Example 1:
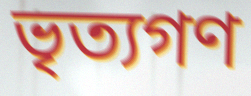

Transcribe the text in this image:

ভৃত্যগণ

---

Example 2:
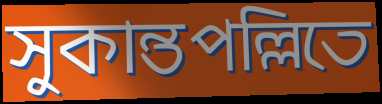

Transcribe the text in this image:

সুকান্তপল্লিতে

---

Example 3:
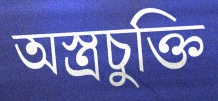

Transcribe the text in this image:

অস্ত্রচুক্তি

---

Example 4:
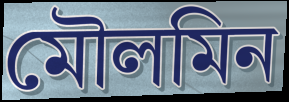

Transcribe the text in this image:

মৌলমিন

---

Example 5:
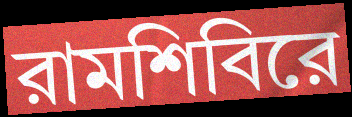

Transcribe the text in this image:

রামশিবিরে